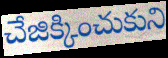
చేజిక్కించుకుని